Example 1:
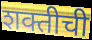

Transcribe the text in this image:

शक्तीची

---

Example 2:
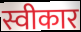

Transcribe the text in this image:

स्वीकार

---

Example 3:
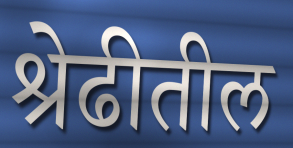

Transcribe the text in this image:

श्रेढीतील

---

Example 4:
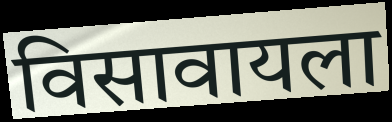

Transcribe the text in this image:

विसावायला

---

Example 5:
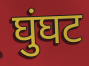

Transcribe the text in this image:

घुंघट